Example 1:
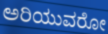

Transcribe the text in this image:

ಅರಿಯುವರೋ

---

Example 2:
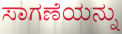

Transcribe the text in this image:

ಸಾಗಣೆಯನ್ನು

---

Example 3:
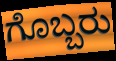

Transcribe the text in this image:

ಗೊಬ್ಬರು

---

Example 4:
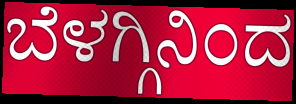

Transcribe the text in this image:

ಬೆಳಗ್ಗಿನಿಂದ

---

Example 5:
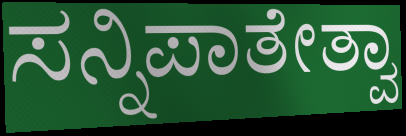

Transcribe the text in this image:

ಸನ್ನಿಪಾತೇತ್ವಾ